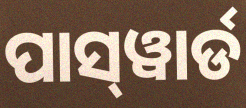
ପାସ୍‌ୱାର୍ଡ